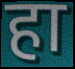
हा